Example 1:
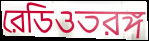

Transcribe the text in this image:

রেডিওতরঙ্গ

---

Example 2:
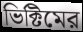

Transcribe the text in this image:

ভিক্টিমের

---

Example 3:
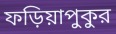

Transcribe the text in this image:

ফড়িয়াপুকুর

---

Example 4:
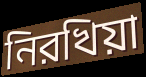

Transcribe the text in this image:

নিরখিয়া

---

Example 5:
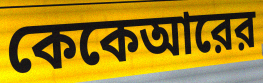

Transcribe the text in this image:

কেকেআরের